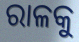
ରାଳକୁ